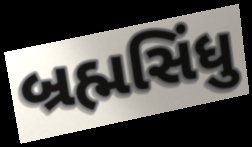
બ્રહ્મસિંધુ